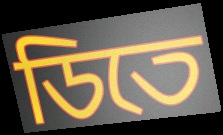
ডিতে